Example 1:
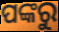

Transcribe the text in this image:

ପଙ୍କରୁ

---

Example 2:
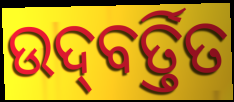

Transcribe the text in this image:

ଉଦ୍‌ବର୍ତ୍ତିତ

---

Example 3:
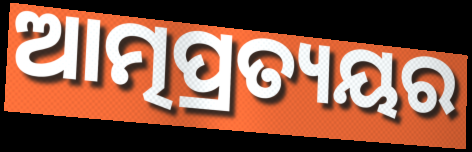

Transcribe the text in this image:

ଆତ୍ମପ୍ରତ୍ୟୟର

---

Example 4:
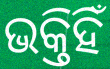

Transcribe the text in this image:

ଭକ୍ତିହିଁ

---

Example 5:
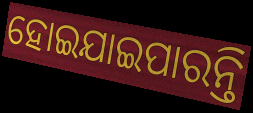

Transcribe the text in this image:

ହୋଇଯାଇପାରନ୍ତି